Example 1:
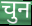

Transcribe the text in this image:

चुन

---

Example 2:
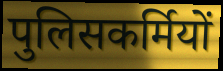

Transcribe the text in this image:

पुलिसकर्मियों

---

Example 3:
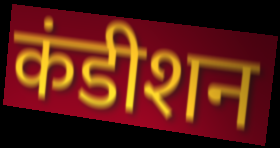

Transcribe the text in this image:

कंडीशन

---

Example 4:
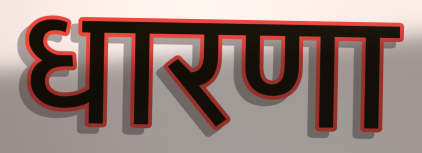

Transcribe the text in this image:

धारणा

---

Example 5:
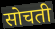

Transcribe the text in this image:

सोचती